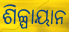
ଶିଳ୍ପାୟାନ